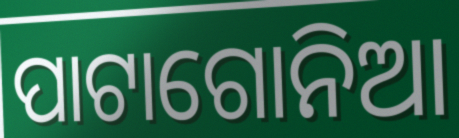
ପାଟାଗୋନିଆ